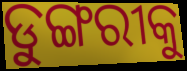
ଡୁଙ୍ଗରୀକୁ